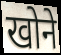
खोने